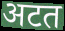
अटत